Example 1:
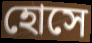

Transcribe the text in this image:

হোসে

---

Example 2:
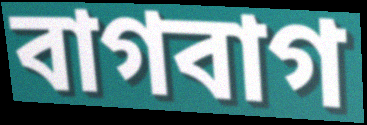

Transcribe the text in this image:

বাগবাগ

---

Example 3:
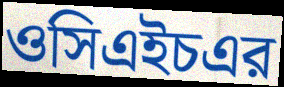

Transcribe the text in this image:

ওসিএইচএর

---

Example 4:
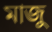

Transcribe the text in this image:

মাজু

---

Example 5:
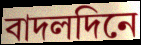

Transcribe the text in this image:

বাদলদিনে